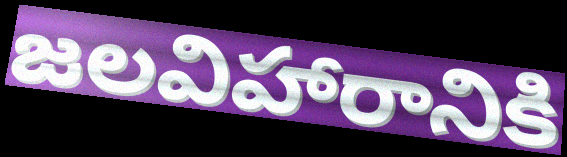
జలవిహారానికి